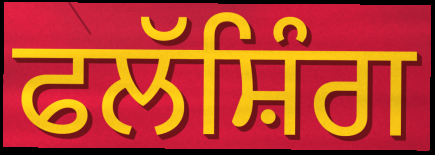
ਫਲੱਸ਼ਿੰਗ